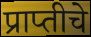
प्राप्तीचे